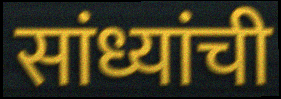
सांध्यांची